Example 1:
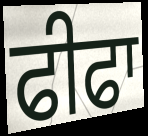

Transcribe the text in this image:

ਫੀਫਾ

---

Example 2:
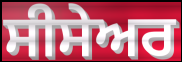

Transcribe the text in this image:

ਸੀਸੇਅਰ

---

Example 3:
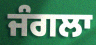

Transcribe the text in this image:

ਜੰਗਲਾ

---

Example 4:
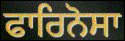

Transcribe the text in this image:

ਫਾਰਿਨੋਸਾ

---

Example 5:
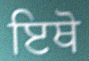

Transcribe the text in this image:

ਇਥੋ